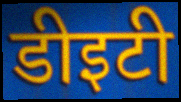
डीइटी